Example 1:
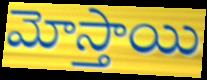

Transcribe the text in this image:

మోస్తాయి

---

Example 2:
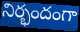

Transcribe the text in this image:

నిర్భందంగా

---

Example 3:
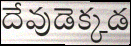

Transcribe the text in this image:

దేవుడెక్కడ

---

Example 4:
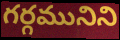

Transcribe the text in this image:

గర్గమునిని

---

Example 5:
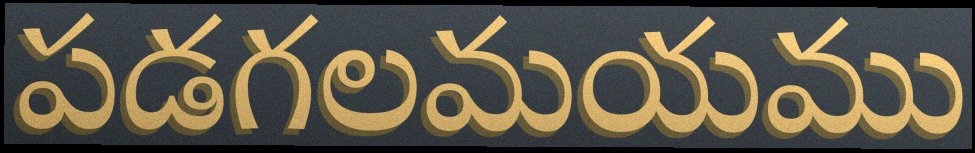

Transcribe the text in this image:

పడగలమయము